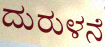
ದುರುಳನೆ